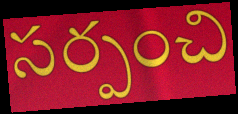
సర్పంచి